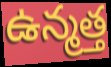
ఉన్మత్త